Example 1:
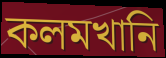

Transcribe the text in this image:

কলমখানি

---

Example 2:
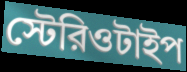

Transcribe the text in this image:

স্টেরিওটাইপ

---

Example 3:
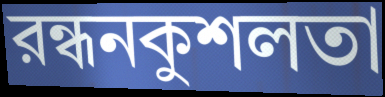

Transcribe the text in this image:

রন্ধনকুশলতা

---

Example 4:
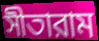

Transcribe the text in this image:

সীতারাম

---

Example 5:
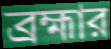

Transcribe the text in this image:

ব্রহ্মার